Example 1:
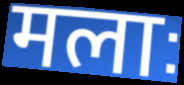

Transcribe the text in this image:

मलाः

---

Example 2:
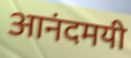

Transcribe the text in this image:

आनंदमयी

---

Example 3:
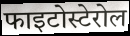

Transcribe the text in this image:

फाइटोस्टेरोल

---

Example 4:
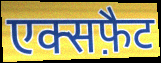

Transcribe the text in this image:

एक्सफ़ैट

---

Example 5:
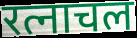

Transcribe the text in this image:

रत्नाचल